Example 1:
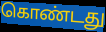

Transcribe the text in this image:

கொண்டது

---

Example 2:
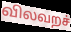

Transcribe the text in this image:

விலவறச்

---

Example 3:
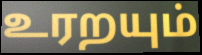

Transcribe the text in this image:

உரறயும்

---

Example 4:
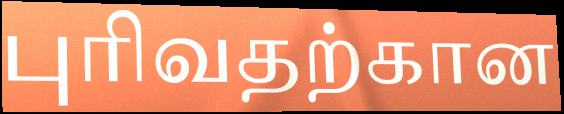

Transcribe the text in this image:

புரிவதற்கான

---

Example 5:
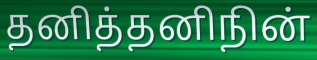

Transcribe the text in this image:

தனித்தனிநின்